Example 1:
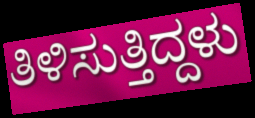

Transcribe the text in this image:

ತಿಳಿಸುತ್ತಿದ್ದಳು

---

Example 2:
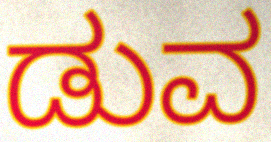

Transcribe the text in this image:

ಡುವ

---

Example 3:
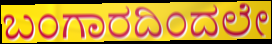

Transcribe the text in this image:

ಬಂಗಾರದಿಂದಲೇ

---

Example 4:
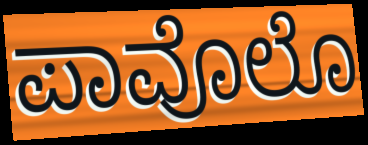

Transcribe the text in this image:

ಪಾವೊಲೊ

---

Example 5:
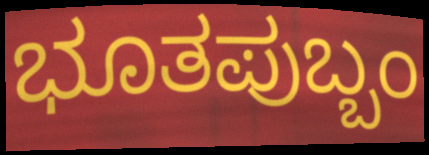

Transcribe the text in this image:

ಭೂತಪುಬ್ಬಂ